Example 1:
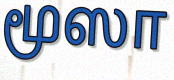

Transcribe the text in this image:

மூஸா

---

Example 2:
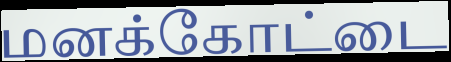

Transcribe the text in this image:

மனக்கோட்டை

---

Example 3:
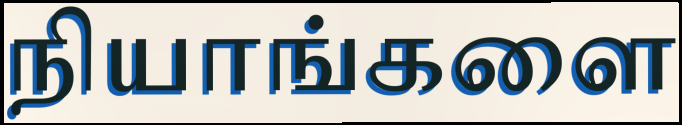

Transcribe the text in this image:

நியாங்களை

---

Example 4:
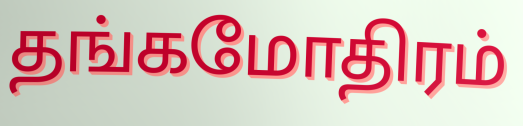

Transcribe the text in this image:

தங்கமோதிரம்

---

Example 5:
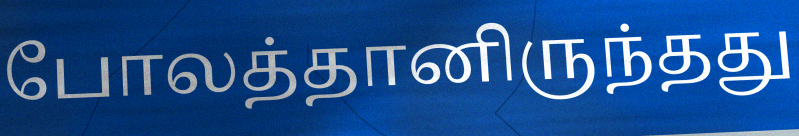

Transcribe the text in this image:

போலத்தானிருந்தது